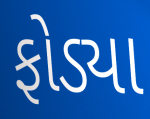
ફોડ્યા